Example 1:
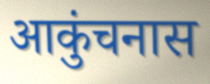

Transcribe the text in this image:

आकुंचनास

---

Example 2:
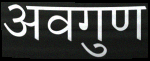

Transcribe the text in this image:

अवगुण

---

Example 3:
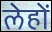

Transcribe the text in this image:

लेहों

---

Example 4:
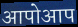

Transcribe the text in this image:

आपोआप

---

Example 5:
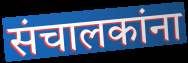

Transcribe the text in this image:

संचालकांना